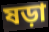
ষড়া